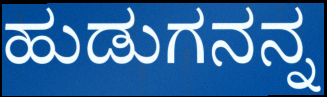
ಹುಡುಗನನ್ನ